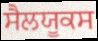
ਸੈਲਯੂਕਸ